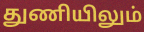
துணியிலும்